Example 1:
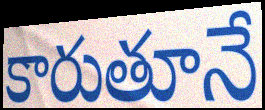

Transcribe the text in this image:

కారుతూనే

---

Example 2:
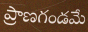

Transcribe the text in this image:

ప్రాణగండమే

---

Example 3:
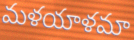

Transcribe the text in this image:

మళయాళమా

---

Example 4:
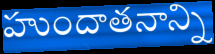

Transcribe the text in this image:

హుందాతనాన్ని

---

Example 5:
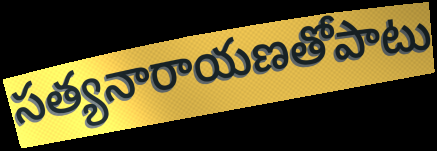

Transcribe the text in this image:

సత్యనారాయణతోపాటు